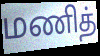
மணித்